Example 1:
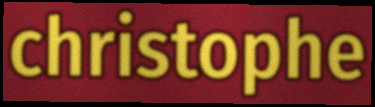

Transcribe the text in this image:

christophe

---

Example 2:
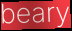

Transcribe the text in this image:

beary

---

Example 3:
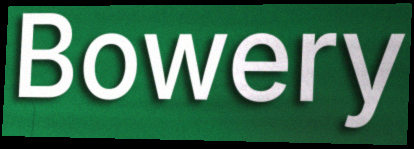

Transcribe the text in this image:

Bowery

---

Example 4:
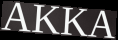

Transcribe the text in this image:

AKKA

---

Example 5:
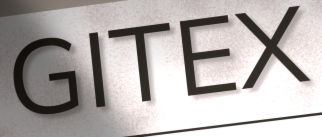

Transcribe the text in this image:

GITEX